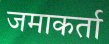
जमाकर्ता